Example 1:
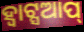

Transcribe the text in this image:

ହ୍ବାଟ୍ସଆପ୍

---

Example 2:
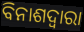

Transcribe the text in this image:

ବିନାଶଦ୍ଵାରା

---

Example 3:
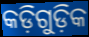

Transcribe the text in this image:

କଡ଼ିଗୁଡ଼ିକ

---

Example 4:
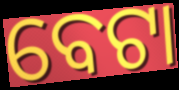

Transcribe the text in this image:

ବେଟା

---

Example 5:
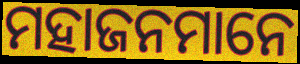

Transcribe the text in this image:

ମହାଜନମାନେ